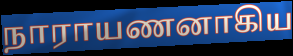
நாராயணனாகிய